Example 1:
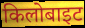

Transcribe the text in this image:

किलोबाइट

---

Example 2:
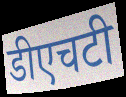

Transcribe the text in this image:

डीएचटी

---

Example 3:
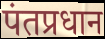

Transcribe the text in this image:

पंतप्रधान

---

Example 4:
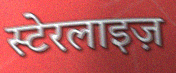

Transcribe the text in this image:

स्टेरलाइज़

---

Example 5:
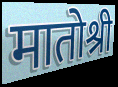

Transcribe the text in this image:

मातोश्री